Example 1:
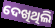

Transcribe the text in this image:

ଦେଖିଥିଲି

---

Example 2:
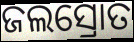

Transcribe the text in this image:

ଜଲସ୍ରୋତ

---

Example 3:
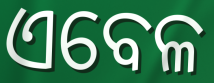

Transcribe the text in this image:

ଏବେଳ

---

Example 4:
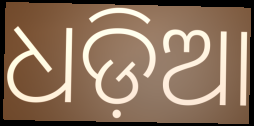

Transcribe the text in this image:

ଧଡ଼ିଆ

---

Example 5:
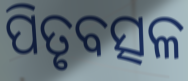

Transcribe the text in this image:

ପିତୃବତ୍ସଳ